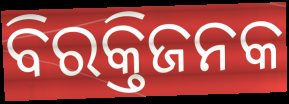
ବିରକ୍ତିଜନକ